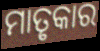
ମାତୃକାର